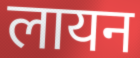
लायन